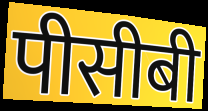
पीसीबी